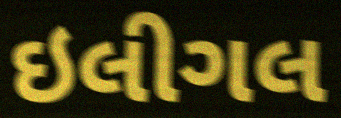
ઇલીગલ